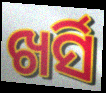
ଖର୍ସି